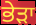
ਭੇੜਾ